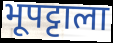
भूपट्टाला